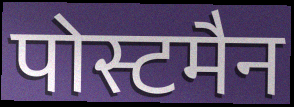
पोस्टमैन